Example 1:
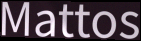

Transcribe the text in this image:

Mattos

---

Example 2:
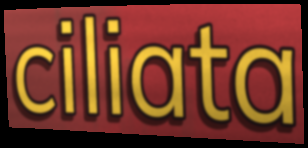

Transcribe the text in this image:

ciliata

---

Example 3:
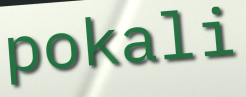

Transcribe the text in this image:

pokali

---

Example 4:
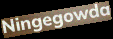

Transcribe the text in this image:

Ningegowda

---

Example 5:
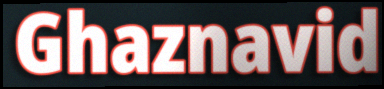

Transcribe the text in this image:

Ghaznavid